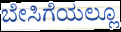
ಬೇಸಿಗೆಯಲ್ಲೂ